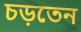
চড়তেন